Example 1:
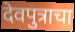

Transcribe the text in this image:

देवपुत्राचा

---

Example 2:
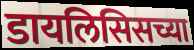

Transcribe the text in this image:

डायलिसिसच्या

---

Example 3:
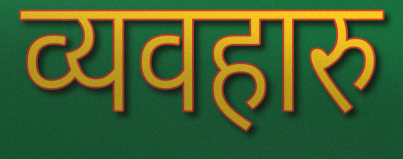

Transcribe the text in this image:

व्यवहारु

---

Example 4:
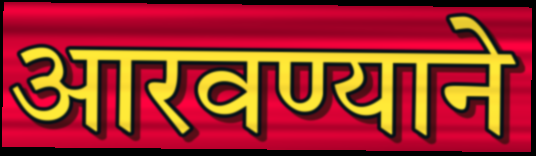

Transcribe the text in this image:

आरवण्याने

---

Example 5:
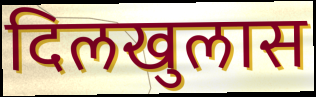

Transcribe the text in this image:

दिलखुलास